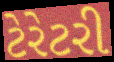
ટેરેટરી